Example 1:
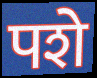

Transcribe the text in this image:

पशे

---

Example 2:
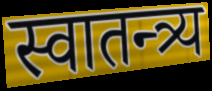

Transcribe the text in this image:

स्वातन्त्र्य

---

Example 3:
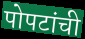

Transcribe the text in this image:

पोपटांची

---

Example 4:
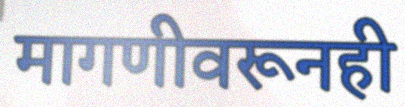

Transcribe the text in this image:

मागणीवरूनही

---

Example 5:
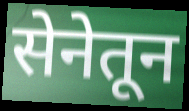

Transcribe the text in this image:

सेनेतून